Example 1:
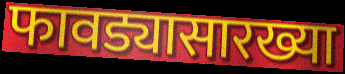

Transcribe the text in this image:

फावड्यासारख्या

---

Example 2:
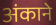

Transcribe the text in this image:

अंकाने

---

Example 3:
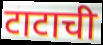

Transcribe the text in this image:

टाटाची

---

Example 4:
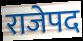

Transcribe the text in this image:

राजेपद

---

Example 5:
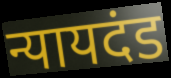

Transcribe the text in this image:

न्यायदंड